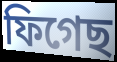
ফিগেছ